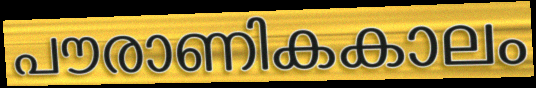
പൗരാണികകാലം